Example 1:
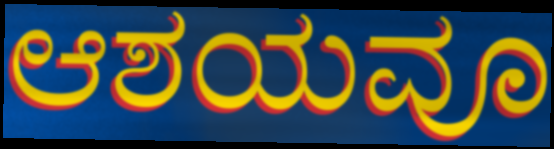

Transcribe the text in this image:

ಆಶಯವೂ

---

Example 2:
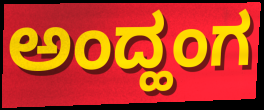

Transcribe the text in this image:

ಅಂದ್ಹಂಗ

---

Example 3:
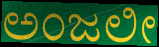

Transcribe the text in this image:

ಅಂಜಲೀ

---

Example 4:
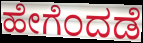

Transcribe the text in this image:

ಹೇಗೆಂದಡೆ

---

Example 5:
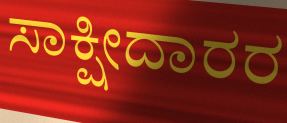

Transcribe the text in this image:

ಸಾಕ್ಷೀದಾರರ